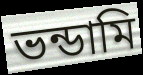
ভন্ডামি